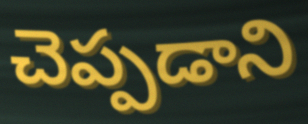
చెప్పడాని